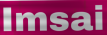
Imsai